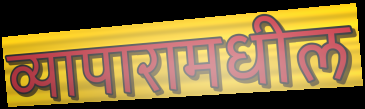
व्यापारामधील